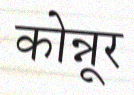
कोन्नूर